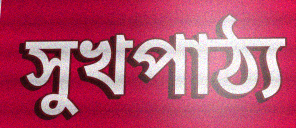
সুখপাঠ্য